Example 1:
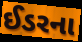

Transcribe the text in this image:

ઈડરના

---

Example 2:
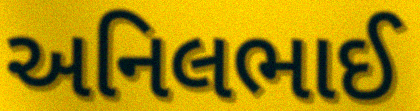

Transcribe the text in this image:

અનિલભાઈ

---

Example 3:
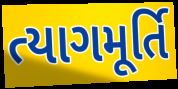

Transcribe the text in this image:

ત્યાગમૂર્તિ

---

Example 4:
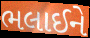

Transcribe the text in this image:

ભલાઈને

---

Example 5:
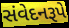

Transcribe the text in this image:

સંવેદનરૂપે